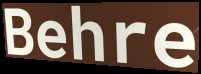
Behre